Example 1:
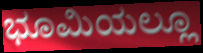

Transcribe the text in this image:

ಭೂಮಿಯಲ್ಲೂ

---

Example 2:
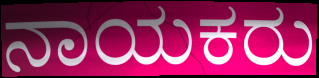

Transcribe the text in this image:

ನಾಯಕರು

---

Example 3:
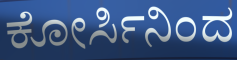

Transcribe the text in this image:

ಕೋರ್ಸಿನಿಂದ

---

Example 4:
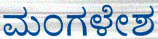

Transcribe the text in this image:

ಮಂಗಳೇಶ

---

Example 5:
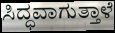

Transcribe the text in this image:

ಸಿದ್ಧವಾಗುತ್ತಾಳೆ